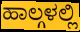
ಹಾಲ್ಗಳಲ್ಲಿ